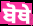
ਬੋਥੇ